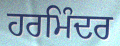
ਹਰਮਿੰਦਰ